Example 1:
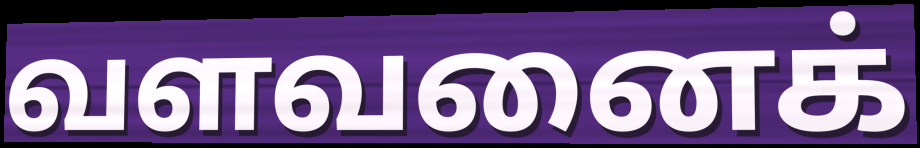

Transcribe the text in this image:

வளவனைக்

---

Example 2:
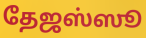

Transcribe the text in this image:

தேஜஸ்ஸூ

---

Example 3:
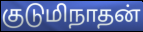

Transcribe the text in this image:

குடுமிநாதன்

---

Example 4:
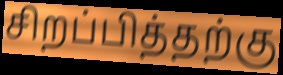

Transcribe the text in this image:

சிறப்பித்தற்கு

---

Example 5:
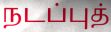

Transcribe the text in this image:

நடப்புத்